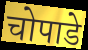
चोपाडे